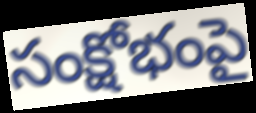
సంక్షోభంపై